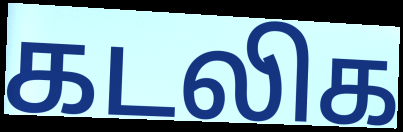
கடலிக